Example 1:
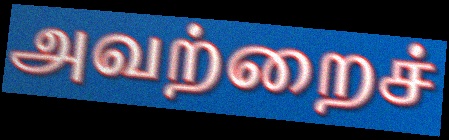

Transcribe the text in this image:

அவற்றைச்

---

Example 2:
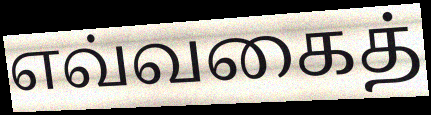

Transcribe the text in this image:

எவ்வகைத்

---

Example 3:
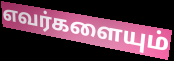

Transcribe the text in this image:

எவர்களையும்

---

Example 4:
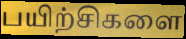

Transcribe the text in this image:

பயிற்சிகளை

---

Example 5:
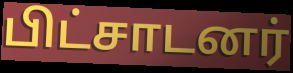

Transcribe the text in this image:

பிட்சாடனர்